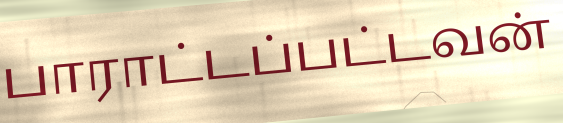
பாராட்டப்பட்டவன்